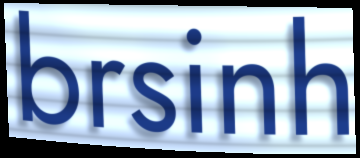
brsinh